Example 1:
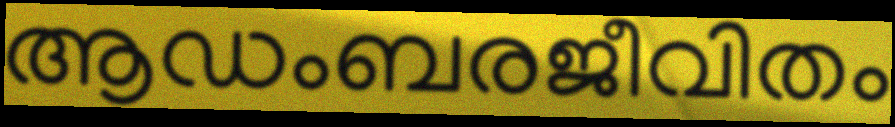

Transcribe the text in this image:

ആഡംബരജീവിതം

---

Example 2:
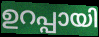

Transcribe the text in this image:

ഉറപ്പായി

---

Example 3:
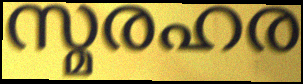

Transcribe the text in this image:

സ്മരഹര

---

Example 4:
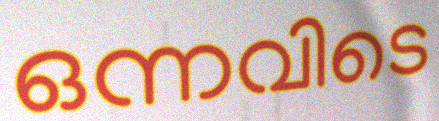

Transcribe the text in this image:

ഒന്നവിടെ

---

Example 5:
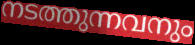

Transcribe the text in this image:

നടത്തുന്നവനും